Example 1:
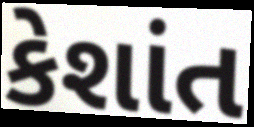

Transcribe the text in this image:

કેશાંત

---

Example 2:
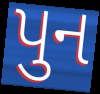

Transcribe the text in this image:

પુન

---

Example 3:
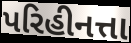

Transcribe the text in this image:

પરિહીનત્તા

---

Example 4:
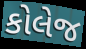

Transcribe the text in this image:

કોલેજ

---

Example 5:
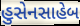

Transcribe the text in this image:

હુસેનસાહેબ